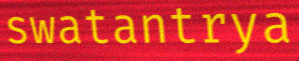
swatantrya